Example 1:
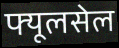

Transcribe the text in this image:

फ्यूलसेल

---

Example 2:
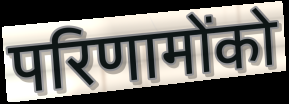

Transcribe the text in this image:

परिणामोंको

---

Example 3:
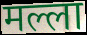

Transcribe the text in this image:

मल्‍ला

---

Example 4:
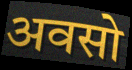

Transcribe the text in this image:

अवसो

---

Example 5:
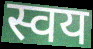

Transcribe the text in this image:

स्वय